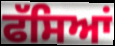
ਫੱਸਿਆਂ